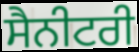
ਸੈਨੀਟਰੀ